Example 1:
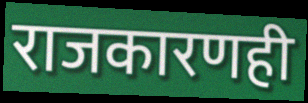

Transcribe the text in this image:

राजकारणही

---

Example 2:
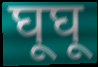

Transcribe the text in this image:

घूघू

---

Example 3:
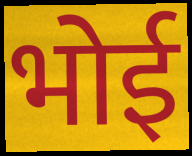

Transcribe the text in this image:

भोई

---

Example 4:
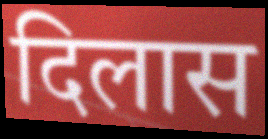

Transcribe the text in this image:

दिलास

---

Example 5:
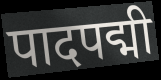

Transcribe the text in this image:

पादपद्मी